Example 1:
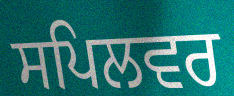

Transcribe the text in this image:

ਸਪਿਲਵਰ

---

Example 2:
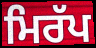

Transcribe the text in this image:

ਮਿਰੱਪ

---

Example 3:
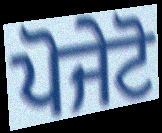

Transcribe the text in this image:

ਪੋਜੇਟੋ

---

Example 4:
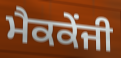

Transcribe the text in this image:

ਮੈਕਕੇਂਜੀ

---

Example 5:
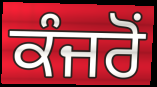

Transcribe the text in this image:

ਕੰਜਰੋਂ